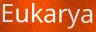
Eukarya